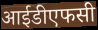
आईडीएफसी